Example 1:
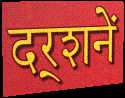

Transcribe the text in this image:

दर्शनें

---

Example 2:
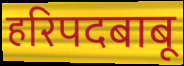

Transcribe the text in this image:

हरिपदबाबू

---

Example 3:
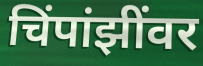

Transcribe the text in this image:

चिंपांझींवर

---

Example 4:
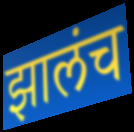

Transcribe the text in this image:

झालंच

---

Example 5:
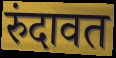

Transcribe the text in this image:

रुंदावत